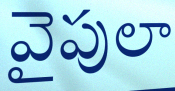
వైపులా